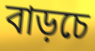
বাড়চে